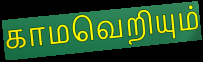
காமவெறியும்